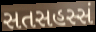
સતસહસ્સં